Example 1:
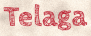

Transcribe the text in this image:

Telaga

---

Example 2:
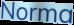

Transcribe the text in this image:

Norma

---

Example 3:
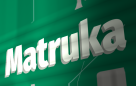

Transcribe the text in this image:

Matruka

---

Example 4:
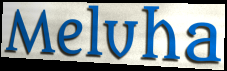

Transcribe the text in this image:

Meluha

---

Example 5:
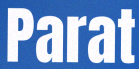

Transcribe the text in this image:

Parat